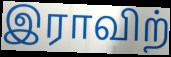
இராவிற்